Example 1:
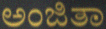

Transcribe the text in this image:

ಅಂಜಿತಾ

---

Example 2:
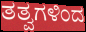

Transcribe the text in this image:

ತತ್ವಗಳಿಂದ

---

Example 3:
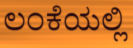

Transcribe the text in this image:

ಲಂಕೆಯಲ್ಲಿ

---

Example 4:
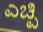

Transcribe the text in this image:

ಎಚ್ಪಿ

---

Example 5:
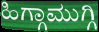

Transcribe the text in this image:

ಹಿಗ್ಗಾಮುಗ್ಗಿ